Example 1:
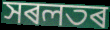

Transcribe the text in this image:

সৰলতৰ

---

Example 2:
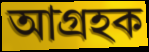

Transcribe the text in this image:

আগ্ৰহক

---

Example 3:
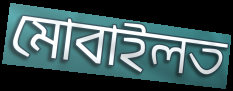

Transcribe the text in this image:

মোবাইলত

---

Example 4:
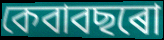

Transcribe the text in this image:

কেবাবছৰো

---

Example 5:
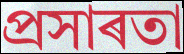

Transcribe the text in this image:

প্ৰসাৰতা